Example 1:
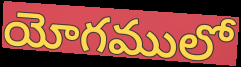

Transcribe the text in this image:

యోగములో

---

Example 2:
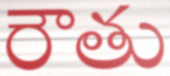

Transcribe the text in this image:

రౌతు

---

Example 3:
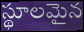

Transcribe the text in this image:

స్థూలమైన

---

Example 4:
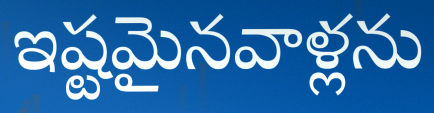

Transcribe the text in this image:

ఇష్టమైనవాళ్లను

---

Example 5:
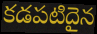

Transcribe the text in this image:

కడపటిదైన